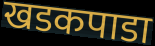
खडकपाडा